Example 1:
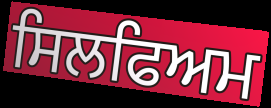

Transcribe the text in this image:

ਸਿਲਫਿਅਮ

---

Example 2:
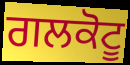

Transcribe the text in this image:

ਗਲਕੋਟੂ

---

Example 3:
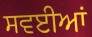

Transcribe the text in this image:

ਸਵਈਆਂ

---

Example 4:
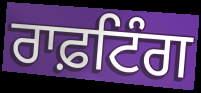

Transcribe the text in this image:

ਰਾਫ਼ਟਿੰਗ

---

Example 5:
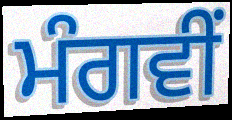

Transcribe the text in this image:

ਮੰਗਵੀਂ